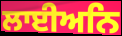
ਲਾਈਅਨਿ